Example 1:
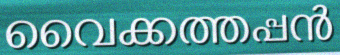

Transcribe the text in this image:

വൈക്കത്തപ്പൻ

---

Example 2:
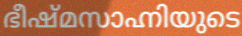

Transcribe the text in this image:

ഭീഷ്മസാഹ്നിയുടെ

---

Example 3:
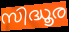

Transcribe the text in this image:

സിദ്ധൂര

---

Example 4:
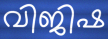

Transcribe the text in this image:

വിജിഷ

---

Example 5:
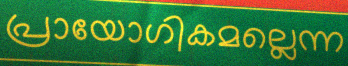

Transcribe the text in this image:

പ്രായോഗികമല്ലെന്ന